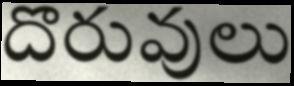
దొరువులు